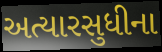
અત્યારસુધીના